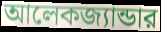
আলেকজ্যান্ডার